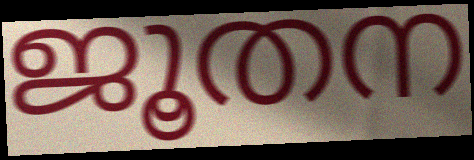
ജൂതന